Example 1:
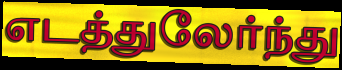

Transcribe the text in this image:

எடத்துலேர்ந்து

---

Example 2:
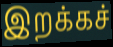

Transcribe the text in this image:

இறக்கச்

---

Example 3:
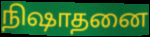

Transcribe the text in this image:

நிஷாதனை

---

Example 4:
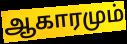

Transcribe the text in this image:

ஆகாரமும்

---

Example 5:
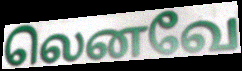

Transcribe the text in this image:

லெனவே